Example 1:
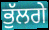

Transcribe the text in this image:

ਭੁੱਲਗੇ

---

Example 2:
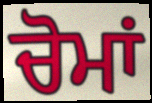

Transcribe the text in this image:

ਚੋਮਾਂ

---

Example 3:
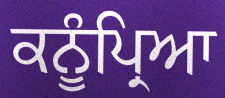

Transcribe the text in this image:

ਕਨੂੰਪ੍ਰਿਆ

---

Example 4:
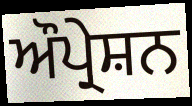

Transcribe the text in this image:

ਔਪ੍ਰੇਸ਼ਨ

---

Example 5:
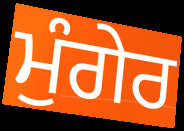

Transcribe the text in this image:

ਮੁੰਗੇਰ